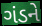
ગંડને